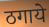
ठगाये